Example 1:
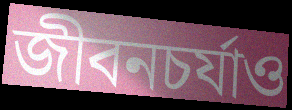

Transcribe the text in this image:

জীবনচর্যাও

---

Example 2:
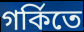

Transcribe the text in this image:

গর্কিতে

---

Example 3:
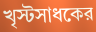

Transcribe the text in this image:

খৃস্টসাধকের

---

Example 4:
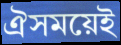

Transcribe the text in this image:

ঐসময়েই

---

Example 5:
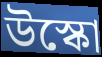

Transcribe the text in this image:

উস্কো